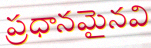
ప్రధానమైనవి